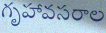
గృహావసరాల